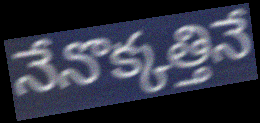
నేనొక్కత్తినే